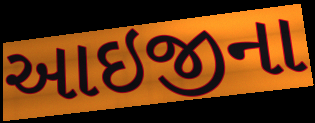
આઇજીના